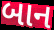
બાન